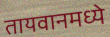
तायवानमध्ये